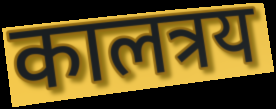
कालत्रय